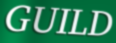
GUILD